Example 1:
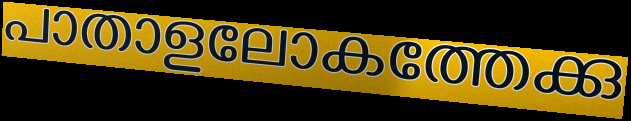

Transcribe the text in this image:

പാതാളലോകത്തേക്കു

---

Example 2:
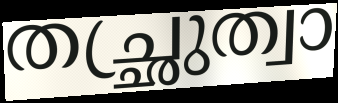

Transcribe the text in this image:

തച്ഛ്രുത്വാ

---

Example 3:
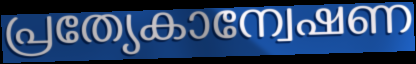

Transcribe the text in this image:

പ്രത്യേകാന്വേഷണ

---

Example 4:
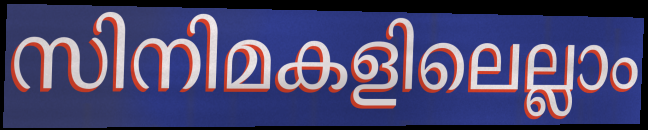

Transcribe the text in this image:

സിനിമകളിലെല്ലാം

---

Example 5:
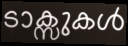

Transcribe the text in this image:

ടാക്സുകൾ